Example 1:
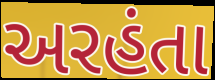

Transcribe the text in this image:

અરહંતા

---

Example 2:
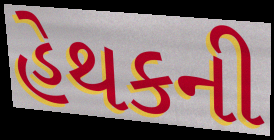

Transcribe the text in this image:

હેથકની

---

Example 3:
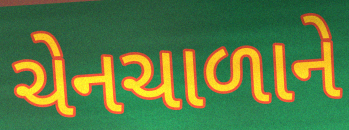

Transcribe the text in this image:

ચેનચાળાને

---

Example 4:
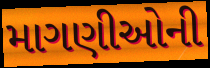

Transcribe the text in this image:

માગણીઓની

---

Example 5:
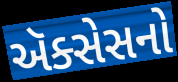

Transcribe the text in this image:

ઍક્સેસનો